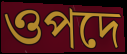
ওপদে